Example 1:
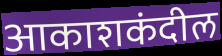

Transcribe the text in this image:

आकाशकंदील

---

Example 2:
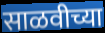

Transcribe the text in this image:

साळवीच्या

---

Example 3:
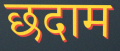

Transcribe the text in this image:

छदाम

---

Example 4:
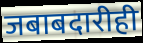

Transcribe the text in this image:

जबाबदारीही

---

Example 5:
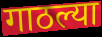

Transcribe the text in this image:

गाठल्या